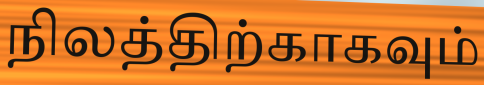
நிலத்திற்காகவும்